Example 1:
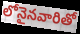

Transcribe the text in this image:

లోనైనవారితో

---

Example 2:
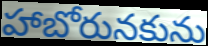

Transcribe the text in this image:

హాబోరునకును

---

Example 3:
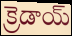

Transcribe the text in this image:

క్రెడాయ్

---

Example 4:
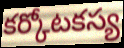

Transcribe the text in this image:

కర్కోటకస్య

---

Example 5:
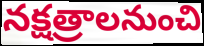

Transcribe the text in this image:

నక్షత్రాలనుంచి